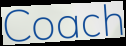
Coach